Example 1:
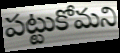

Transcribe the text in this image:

పట్టుకోమని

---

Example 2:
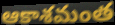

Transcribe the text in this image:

ఆకాశమంత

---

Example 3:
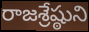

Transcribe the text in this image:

రాజశ్రేష్ఠుని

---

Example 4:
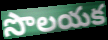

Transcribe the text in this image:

సొలయక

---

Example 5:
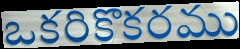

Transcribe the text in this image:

ఒకరికొకరము